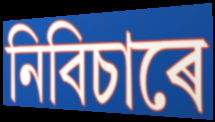
নিবিচাৰে